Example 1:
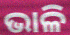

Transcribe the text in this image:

ଭାଳି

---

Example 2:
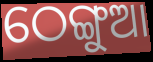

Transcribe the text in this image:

ଠେଙ୍ଗୁଆ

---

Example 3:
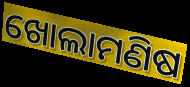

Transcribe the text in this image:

ଖୋଲାମଣିଷ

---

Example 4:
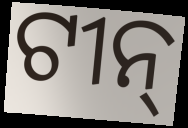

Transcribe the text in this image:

ଟୀନ୍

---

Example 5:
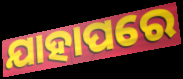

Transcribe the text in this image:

ଯାହାପରେ